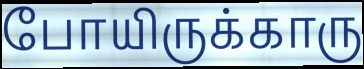
போயிருக்காரு